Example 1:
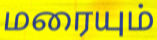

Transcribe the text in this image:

மரையும்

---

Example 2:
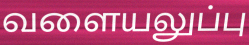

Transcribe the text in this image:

வளையலுப்பு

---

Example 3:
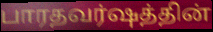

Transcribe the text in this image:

பாரதவர்ஷத்தின்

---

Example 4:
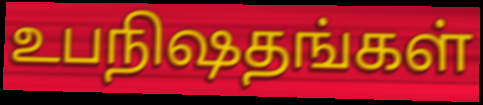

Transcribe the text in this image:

உபநிஷதங்கள்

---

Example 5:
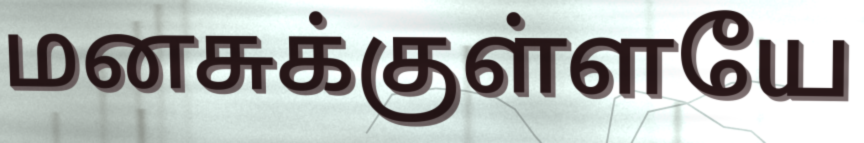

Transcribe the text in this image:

மனசுக்குள்ளயே